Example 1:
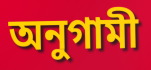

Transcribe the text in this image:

অনুগামী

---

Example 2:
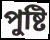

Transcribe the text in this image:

পুষ্টি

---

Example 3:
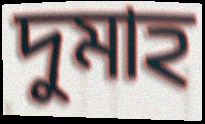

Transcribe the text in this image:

দুমাহ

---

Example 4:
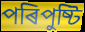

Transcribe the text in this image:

পৰিপুষ্টি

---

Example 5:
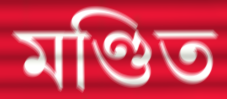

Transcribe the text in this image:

মণ্ডিত